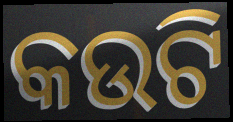
କଉଟି